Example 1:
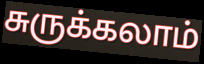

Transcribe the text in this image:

சுருக்கலாம்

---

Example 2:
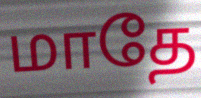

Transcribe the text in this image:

மாதே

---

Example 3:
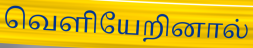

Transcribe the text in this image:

வெளியேறினால்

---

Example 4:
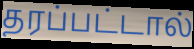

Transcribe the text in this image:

தரப்பட்டால்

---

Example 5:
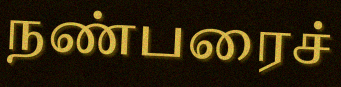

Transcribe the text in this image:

நண்பரைச்